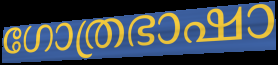
ഗോത്രഭാഷാ